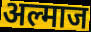
अल्माज